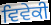
ਵਿਵੇਕੀ